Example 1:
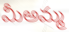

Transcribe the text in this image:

మీఅమ్మ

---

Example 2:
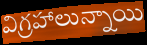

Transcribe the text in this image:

విగ్రహాలున్నాయి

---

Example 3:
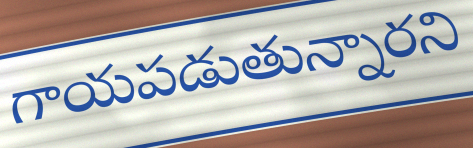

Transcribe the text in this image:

గాయపడుతున్నారని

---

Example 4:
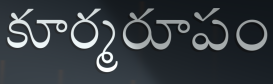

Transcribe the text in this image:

కూర్మరూపం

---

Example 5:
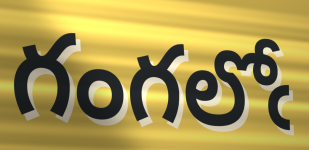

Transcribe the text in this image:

గంగలోఁ